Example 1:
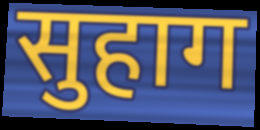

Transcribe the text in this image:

सुहाग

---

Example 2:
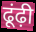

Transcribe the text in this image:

ढूंढ़ी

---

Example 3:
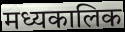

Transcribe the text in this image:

मध्यकालिक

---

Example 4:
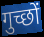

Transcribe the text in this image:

गुच्छों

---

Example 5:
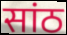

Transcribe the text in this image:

सांठ